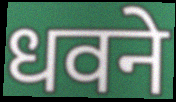
धवने